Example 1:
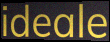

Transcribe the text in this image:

ideale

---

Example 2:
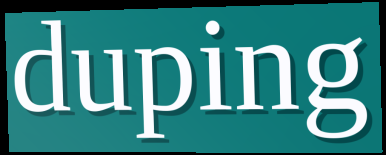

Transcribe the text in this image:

duping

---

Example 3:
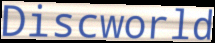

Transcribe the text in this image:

Discworld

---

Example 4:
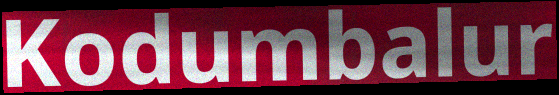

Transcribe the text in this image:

Kodumbalur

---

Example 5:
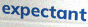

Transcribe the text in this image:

expectant